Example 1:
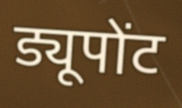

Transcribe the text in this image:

ड्यूपोंट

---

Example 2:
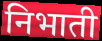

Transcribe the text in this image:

निभाती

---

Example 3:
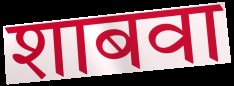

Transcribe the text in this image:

शाबवा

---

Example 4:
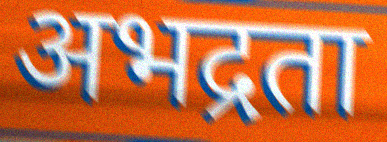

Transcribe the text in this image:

अभद्रता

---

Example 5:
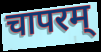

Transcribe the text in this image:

चापरम्